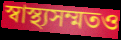
স্বাস্থ্যসম্মতও